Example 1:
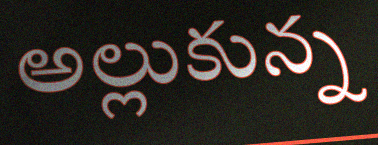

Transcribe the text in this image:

అల్లుకున్న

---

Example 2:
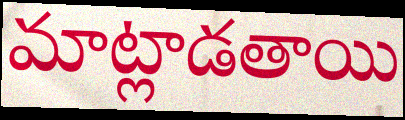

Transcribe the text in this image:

మాట్లాడతాయి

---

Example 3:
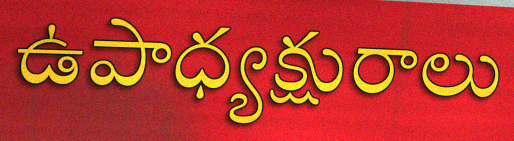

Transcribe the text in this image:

ఉపాధ్యక్షురాలు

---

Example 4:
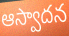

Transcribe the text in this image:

ఆస్వాదన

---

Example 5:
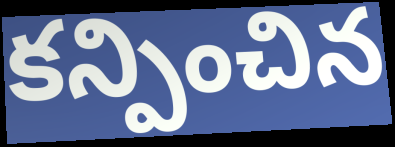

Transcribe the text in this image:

కన్పించిన